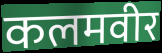
कलमवीर